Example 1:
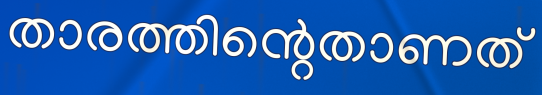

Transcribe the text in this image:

താരത്തിന്റെതാണത്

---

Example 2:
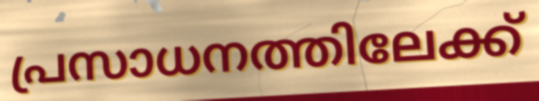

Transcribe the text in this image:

പ്രസാധനത്തിലേക്ക്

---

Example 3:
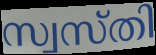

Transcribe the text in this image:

സ്വസ്തി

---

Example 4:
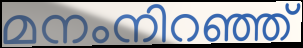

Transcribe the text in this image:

മനംനിറഞ്ഞ്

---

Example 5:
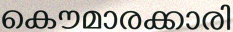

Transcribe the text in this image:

കൌമാരക്കാരി